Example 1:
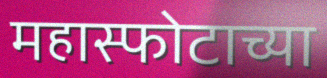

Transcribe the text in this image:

महास्फोटाच्या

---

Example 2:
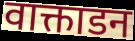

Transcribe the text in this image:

वाक्ताडन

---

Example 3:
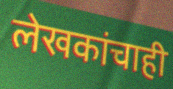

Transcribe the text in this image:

लेखकांचाही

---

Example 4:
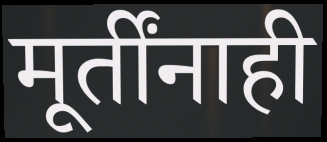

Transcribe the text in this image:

मूर्तींनाही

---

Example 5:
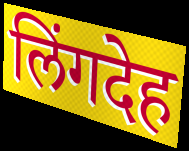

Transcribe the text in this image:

लिंगदेह